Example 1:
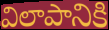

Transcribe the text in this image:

విలాపానికి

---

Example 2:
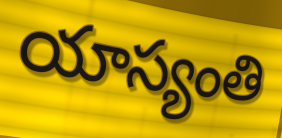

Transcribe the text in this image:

యాస్యంతి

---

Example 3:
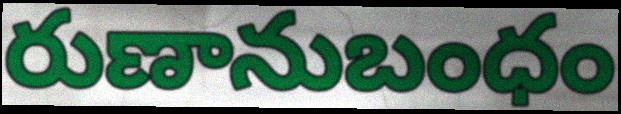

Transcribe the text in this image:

రుణానుబంధం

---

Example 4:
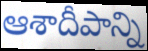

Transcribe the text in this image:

ఆశాదీపాన్ని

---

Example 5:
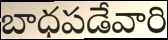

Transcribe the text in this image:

బాధపడేవారి